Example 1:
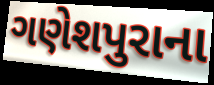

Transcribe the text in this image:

ગણેશપુરાના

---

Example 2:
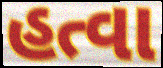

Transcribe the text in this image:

હત્વા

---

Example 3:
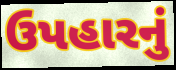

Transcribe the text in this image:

ઉપહારનું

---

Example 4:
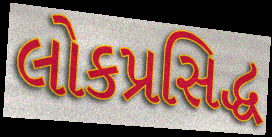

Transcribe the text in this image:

લોકપ્રસિદ્ધ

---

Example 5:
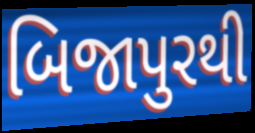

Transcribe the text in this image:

બિજાપુરથી